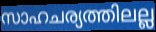
സാഹചര്യത്തിലല്ല